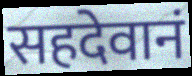
सहदेवानं